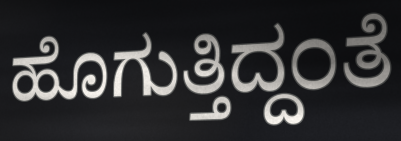
ಹೊಗುತ್ತಿದ್ದಂತೆ